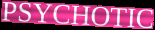
PSYCHOTIC